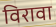
विरावा